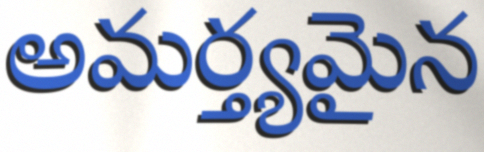
అమర్త్యమైన